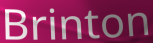
Brinton